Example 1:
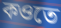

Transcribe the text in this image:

কওতে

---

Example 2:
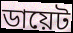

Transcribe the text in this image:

ডায়েট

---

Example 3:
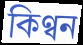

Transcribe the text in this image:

কিণ্বন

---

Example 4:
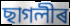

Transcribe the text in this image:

ছাগলীৰ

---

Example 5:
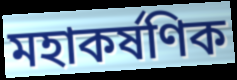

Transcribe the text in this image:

মহাকৰ্ষণিক